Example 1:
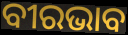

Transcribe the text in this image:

ବୀରଭାବ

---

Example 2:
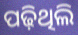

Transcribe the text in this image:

ପଢ଼ିଥିଲି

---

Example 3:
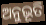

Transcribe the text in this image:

ଅନୁଭୂତି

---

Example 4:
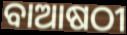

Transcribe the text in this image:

ବାଆଷଠୀ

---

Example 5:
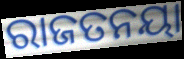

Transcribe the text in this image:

ରାଜତନୟା